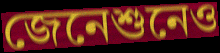
জেনেশুনেও